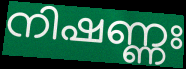
നിഷണ്ണഃ